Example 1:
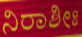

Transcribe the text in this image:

ನಿರಾಶೀಃ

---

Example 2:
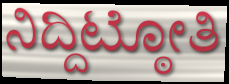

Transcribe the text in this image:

ನಿದ್ದಿಟ್ಠೋತಿ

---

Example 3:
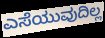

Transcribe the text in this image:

ಎಸೆಯುವುದಿಲ್ಲ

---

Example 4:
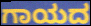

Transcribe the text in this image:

ಗಾಯದ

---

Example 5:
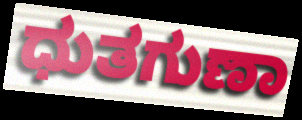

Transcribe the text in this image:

ಧುತಗುಣಾ